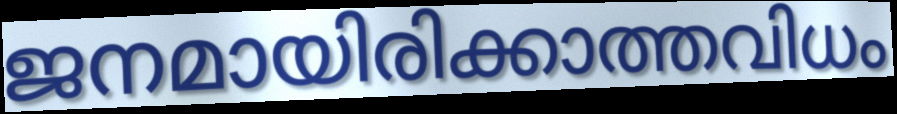
ജനമായിരിക്കാത്തവിധം